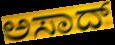
ಅಸಾದ್